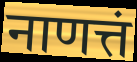
नाणत्तं